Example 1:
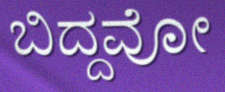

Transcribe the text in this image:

ಬಿದ್ದವೋ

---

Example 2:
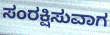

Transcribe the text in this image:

ಸಂರಕ್ಷಿಸುವಾಗ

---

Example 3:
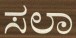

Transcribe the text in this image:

ಸಲಾ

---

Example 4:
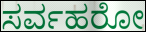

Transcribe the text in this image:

ಸರ್ವಹರೋ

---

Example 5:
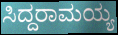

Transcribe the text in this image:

ಸಿದ್ದರಾಮಯ್ಯ